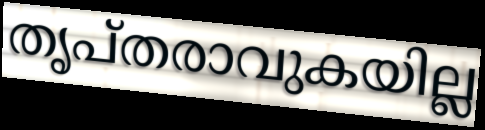
തൃപ്തരാവുകയില്ല